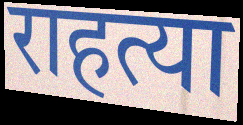
राहत्या